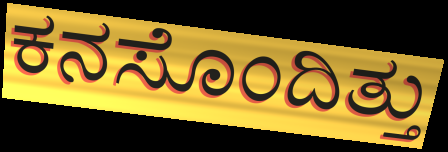
ಕನಸೊಂದಿತ್ತು